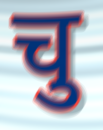
चु